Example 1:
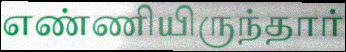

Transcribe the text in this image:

எண்ணியிருந்தார்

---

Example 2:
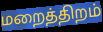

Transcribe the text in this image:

மறைத்திறம்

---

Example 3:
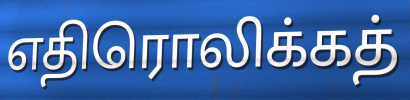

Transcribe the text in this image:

எதிரொலிக்கத்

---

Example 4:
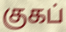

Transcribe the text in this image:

குகப்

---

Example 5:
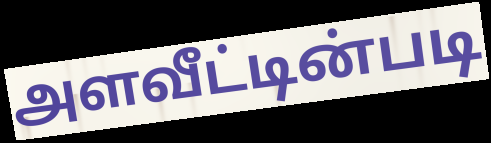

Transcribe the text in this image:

அளவீட்டின்படி